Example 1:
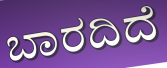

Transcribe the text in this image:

ಬಾರದಿದೆ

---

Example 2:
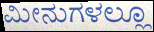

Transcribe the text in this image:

ಮೀನುಗಳಲ್ಲೂ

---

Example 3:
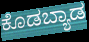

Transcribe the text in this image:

ಕೊಡಬ್ಯಾಡ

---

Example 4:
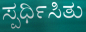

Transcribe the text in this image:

ಸ್ಪರ್ಧಿಸಿತು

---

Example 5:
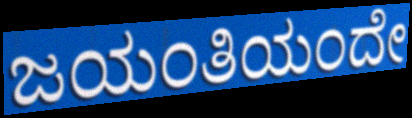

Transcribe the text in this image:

ಜಯಂತಿಯಂದೇ